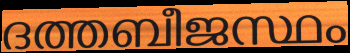
ദത്തബീജസ്ഥം